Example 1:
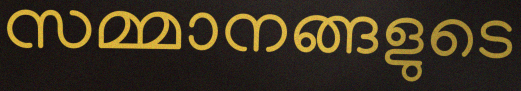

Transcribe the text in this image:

സമ്മാനങ്ങളുടെ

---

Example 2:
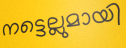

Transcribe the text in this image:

നട്ടെല്ലുമായി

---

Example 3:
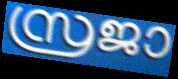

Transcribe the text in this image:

സ്രജാ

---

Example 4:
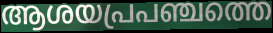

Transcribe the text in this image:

ആശയപ്രപഞ്ചത്തെ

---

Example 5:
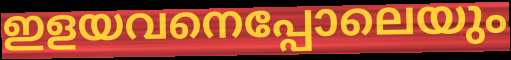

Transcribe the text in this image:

ഇളയവനെപ്പോലെയും